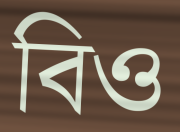
বিও